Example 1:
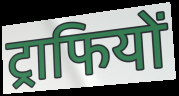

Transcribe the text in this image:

ट्राफियों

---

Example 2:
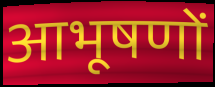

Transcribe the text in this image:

आभूषणों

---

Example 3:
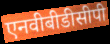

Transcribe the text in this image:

एनवीबीडीसीपी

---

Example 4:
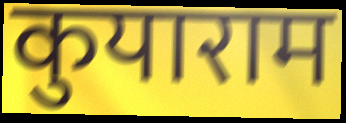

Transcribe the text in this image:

कुयाराम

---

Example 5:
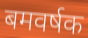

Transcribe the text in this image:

बमवर्षक